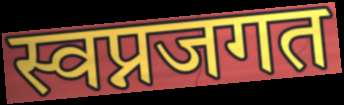
स्वप्नजगत